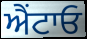
ਐਂਟਾਓ